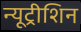
न्यूट्रीशिन